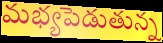
మభ్యపెడుతున్న